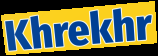
Khrekhr